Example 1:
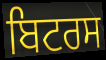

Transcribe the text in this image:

ਬਿਟਰਸ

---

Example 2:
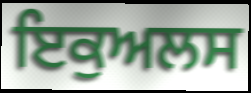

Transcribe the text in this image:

ਇਕੁਅਲਸ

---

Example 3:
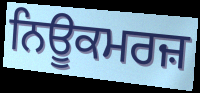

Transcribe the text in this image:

ਨਿਊਕਮਰਜ਼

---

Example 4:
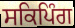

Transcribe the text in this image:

ਸਕਿਪਿੰਗ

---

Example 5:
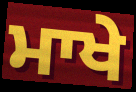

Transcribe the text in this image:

ਮਾਖੇ